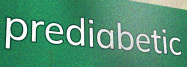
prediabetic